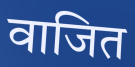
वाजित